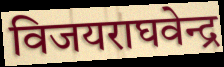
विजयराघवेन्द्र